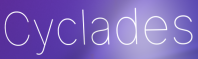
Cyclades